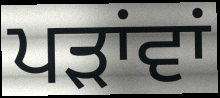
ਪੜਾਂਵਾਂ